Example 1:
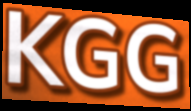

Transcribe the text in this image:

KGG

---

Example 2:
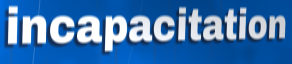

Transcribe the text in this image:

incapacitation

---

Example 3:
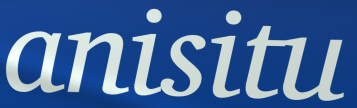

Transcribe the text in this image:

anisitu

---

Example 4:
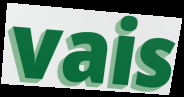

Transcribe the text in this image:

vais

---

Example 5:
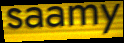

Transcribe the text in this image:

saamy